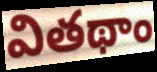
వితథాం